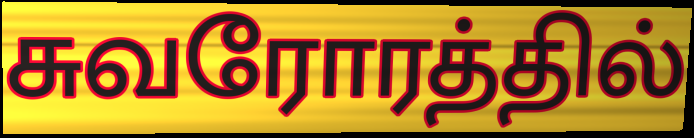
சுவரோரத்தில்